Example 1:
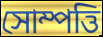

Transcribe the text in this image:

সোম্পত্তি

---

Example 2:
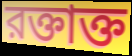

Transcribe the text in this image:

রক্তাক্ত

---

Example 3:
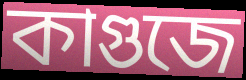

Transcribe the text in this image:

কাগুজে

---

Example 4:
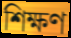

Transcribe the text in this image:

শিক্ষণ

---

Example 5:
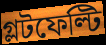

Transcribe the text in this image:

গ্লটফেল্টি